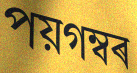
পয়গম্বৰ